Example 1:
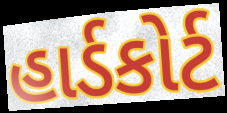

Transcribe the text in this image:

હાર્ડકોર્ટ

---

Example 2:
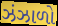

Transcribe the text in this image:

ઝંઝાળો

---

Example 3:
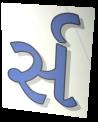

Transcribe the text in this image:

ર્સ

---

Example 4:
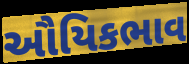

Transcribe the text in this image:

ઔયિકભાવ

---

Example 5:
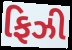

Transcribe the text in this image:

ફિઝી